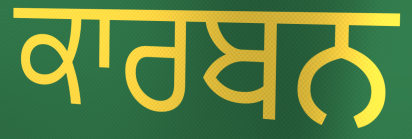
ਕਾਰਬਨ